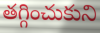
తగ్గించుకుని